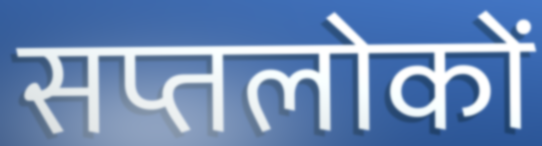
सप्तलोकों